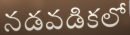
నడవడికలో